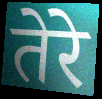
तेरे